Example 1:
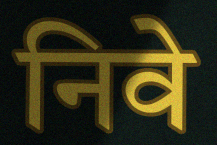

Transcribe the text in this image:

निवे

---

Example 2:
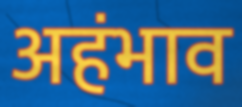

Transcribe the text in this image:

अहंभाव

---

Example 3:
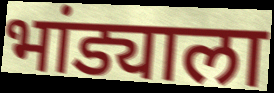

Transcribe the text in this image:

भांड्याला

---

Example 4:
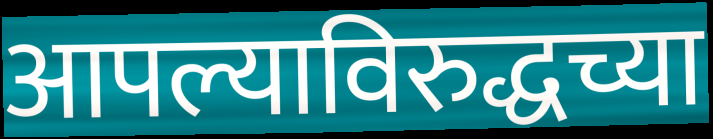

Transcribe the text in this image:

आपल्याविरुद्धच्या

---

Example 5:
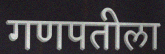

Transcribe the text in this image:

गणपतीला